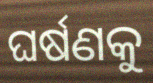
ଘର୍ଷଣକୁ